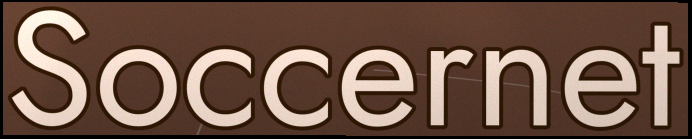
Soccernet